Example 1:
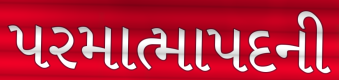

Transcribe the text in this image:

પરમાત્માપદની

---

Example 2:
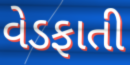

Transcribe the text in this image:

વેડફાતી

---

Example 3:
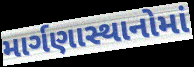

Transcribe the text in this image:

માર્ગણાસ્થાનોમાં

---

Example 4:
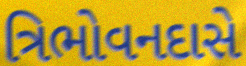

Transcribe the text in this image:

ત્રિભોવનદાસે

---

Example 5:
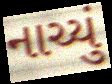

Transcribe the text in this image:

નાચ્યું